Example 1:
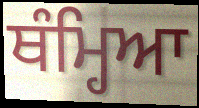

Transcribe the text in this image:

ਥੰਮ੍ਹਿਆ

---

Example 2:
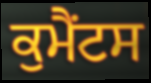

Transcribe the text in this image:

ਕੁਮੈਂਟਸ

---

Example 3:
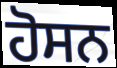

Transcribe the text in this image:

ਹੋਸਨ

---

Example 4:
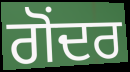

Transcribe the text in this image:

ਗੋਂਦਰ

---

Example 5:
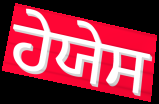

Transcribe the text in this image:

ਹੇਯੇਸ